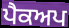
ਪੈਕਅਪ